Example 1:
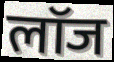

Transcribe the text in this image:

लॉज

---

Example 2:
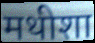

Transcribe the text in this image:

मथीशा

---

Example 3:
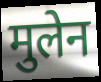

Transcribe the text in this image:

मुलेन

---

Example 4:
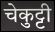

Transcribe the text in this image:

चेकुट्टी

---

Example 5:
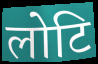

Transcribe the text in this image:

लोटि